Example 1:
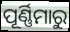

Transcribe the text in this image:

ପୂର୍ଣ୍ଣିମାରୁ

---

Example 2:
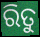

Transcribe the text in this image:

ରିତୁ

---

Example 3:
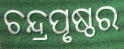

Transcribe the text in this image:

ଚନ୍ଦ୍ରପୃଷ୍ଠର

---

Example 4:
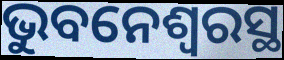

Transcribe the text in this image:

ଭୁବନେଶ୍ଵରସ୍ଥ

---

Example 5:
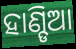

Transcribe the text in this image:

ହାଣ୍ଡିଆ